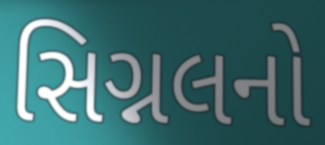
સિગ્નલનો